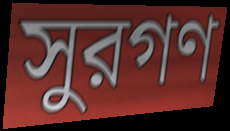
সুরগণ